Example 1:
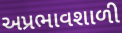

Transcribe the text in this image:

અપ્રભાવશાળી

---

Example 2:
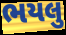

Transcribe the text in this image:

ભયલુ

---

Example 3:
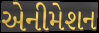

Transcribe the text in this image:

એનીમેશન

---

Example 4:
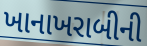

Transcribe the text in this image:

ખાનાખરાબીની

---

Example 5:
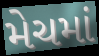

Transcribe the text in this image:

મેચમાં